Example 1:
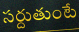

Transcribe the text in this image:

సర్దుతుంటే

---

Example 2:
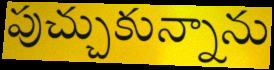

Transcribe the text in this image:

పుచ్చుకున్నాను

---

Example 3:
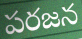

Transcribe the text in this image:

పరజన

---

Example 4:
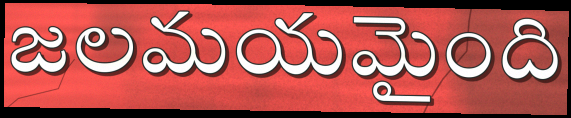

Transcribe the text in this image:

జలమయమైంది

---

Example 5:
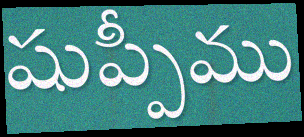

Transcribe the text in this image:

షుప్పీము